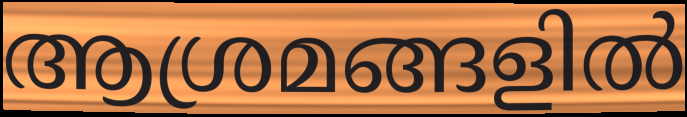
ആശ്രമങ്ങളിൽ